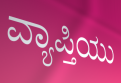
ವ್ಯಾಪ್ತಿಯು